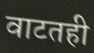
वाटतही